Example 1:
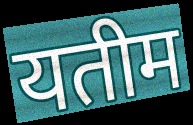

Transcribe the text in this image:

यतीम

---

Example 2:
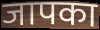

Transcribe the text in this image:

जापका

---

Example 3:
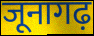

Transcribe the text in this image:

जूनागढ़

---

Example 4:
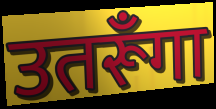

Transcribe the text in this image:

उतरूँगा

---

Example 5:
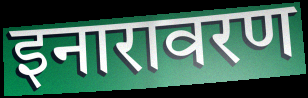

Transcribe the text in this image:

इनारावरण